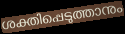
ശക്തിപ്പെടുത്താനും